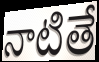
నాటితే